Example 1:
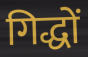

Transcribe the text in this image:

गिद्धों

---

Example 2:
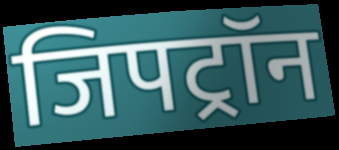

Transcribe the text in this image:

जिपट्रॉन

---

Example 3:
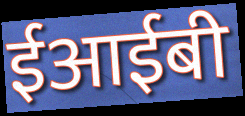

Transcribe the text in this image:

ईआईबी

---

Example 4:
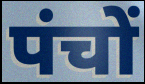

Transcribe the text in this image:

पंचों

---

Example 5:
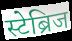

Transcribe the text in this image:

स्टेब्रिज